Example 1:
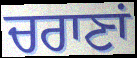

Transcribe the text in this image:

ਚਰਾਣਾਂ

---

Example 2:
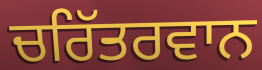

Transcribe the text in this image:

ਚਰਿੱਤਰਵਾਨ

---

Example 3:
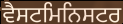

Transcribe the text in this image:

ਵੈਸਟਮਿਨਿਸਟਰ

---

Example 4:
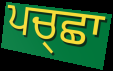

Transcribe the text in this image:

ਪਚ੍ਛਾ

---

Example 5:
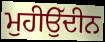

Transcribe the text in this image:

ਮੁਹੀਉੱਦੀਨ